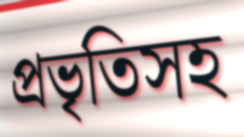
প্রভৃতিসহ